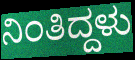
ನಿಂತಿದ್ದಳು